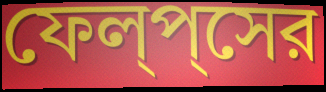
ফেল্‌প্‌সের